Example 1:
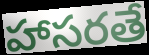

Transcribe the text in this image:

హాసరతే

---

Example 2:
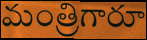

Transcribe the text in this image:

మంత్రిగారూ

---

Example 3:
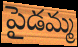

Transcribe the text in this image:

పైడమ్మ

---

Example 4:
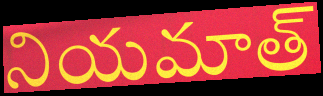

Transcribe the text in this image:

నియమాత్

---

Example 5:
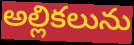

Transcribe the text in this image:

అల్లికలును